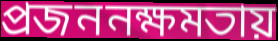
প্রজননক্ষমতায়